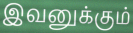
இவனுக்கும்